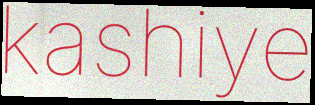
kashiye